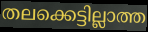
തലക്കെട്ടില്ലാത്ത